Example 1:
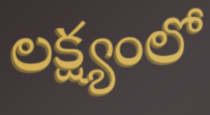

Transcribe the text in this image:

లక్ష్యంలో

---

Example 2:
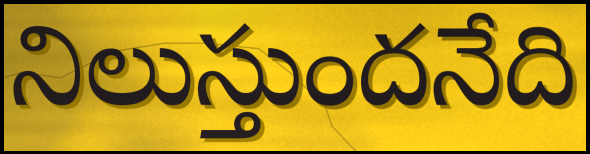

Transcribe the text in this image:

నిలుస్తుందనేది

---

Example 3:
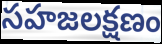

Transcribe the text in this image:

సహజలక్షణం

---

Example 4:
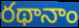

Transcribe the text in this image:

రథానాం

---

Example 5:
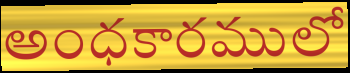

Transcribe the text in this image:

అంధకారములో